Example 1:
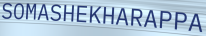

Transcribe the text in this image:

SOMASHEKHARAPPA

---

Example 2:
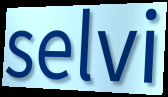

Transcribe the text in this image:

selvi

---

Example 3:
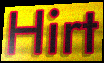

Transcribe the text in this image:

Hirt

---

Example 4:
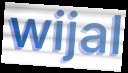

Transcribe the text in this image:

wijal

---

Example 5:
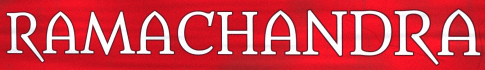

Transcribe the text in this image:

RAMACHANDRA